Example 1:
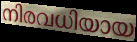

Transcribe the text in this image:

നിരവധിയായ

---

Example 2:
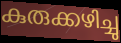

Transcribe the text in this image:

കുരുക്കഴിച്ചു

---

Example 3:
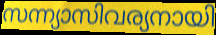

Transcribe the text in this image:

സന്ന്യാസിവര്യനായി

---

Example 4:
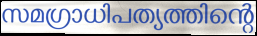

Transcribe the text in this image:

സമഗ്രാധിപത്യത്തിന്റെ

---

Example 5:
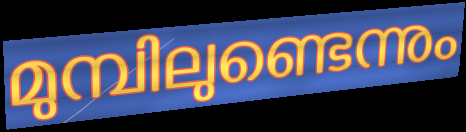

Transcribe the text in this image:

മുമ്പിലുണ്ടെന്നും